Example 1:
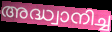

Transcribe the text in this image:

അദ്ധ്വാനിച്ച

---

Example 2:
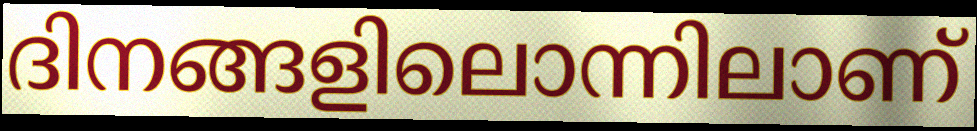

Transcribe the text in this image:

ദിനങ്ങളിലൊന്നിലാണ്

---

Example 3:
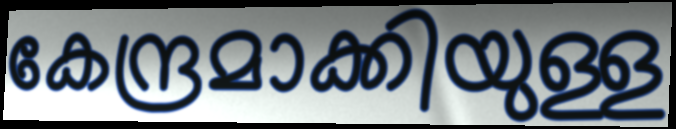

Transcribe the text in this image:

കേന്ദ്രമാക്കിയുള്ള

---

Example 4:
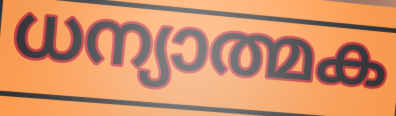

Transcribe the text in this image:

ധന്യാത്മക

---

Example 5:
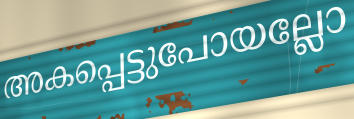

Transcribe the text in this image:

അകപ്പെട്ടുപോയല്ലോ